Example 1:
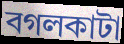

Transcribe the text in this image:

বগলকাটা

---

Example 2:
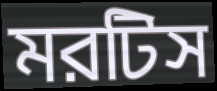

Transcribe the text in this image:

মরটিস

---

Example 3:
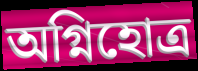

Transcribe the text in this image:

অগ্নিহোত্র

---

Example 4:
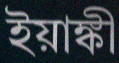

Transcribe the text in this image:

ইয়াঙ্কী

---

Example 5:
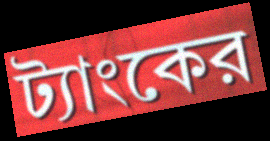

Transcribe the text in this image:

ট্যাংকের